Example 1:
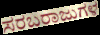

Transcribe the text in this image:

ಸರಬರಾಜುಗಳ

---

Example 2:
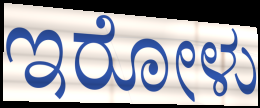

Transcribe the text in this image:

ಇರೋಳು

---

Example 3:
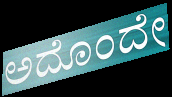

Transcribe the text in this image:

ಅದೊಂದೇ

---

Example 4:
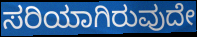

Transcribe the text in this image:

ಸರಿಯಾಗಿರುವುದೇ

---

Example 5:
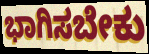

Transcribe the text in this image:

ಭಾಗಿಸಬೇಕು